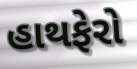
હાથફેરો